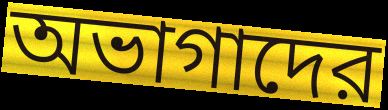
অভাগাদের